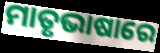
ମାତୃଭାଷାରେ